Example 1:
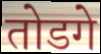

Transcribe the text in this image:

तोडगे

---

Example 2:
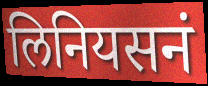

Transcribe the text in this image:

लिनियसनं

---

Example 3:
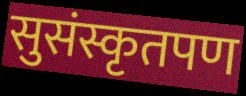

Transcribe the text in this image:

सुसंस्कृतपण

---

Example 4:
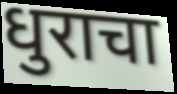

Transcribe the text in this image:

धुराचा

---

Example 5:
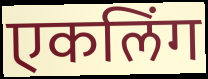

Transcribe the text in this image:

एकलिंग